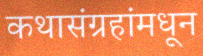
कथासंग्रहांमधून